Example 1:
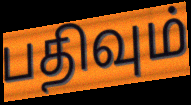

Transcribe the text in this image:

பதிவும்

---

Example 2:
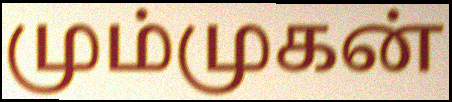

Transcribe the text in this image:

மும்முகன்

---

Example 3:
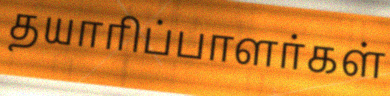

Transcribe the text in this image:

தயாரிப்பாளர்கள்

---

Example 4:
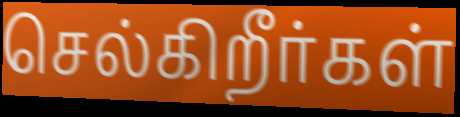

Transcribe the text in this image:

செல்கிறீர்கள்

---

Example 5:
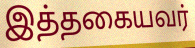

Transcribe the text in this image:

இத்தகையவர்